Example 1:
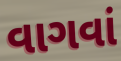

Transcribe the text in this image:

વાગવાં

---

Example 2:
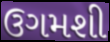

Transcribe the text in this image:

ઉગમશી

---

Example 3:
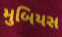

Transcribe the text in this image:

મુબિયસ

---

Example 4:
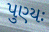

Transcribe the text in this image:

પુણ્યઃ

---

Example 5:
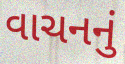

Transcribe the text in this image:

વાચનનું